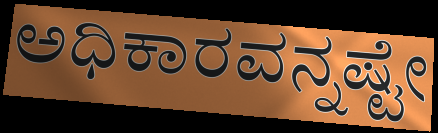
ಅಧಿಕಾರವನ್ನಷ್ಟೇ